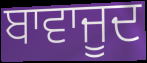
ਬਾਵਾਜੂਦ